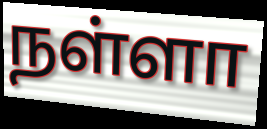
நள்ளா